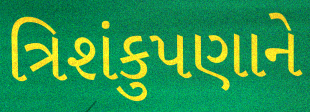
ત્રિશંકુપણાને